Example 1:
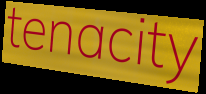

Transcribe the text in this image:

tenacity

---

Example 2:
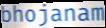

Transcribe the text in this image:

bhojanam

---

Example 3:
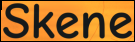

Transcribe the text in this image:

Skene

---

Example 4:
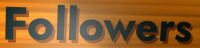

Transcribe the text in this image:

Followers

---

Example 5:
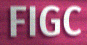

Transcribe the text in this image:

FIGC